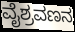
ವೈಶ್ರವಣನ